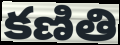
కణితి